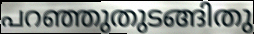
പറഞ്ഞുതുടങ്ങിതു